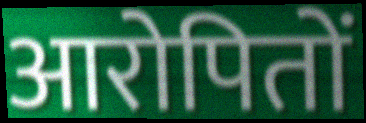
आरोपितों